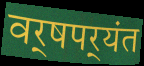
वर्षपर्यंत